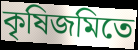
কৃষিজমিতে